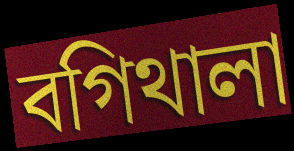
বগিথালা